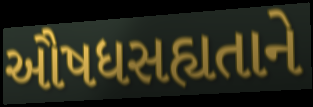
ઔષધસહ્યતાને